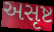
અસૃષ્ટ